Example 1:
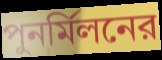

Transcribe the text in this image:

পুনর্মিলনের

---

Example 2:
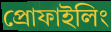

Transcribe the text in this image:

প্রোফাইলিং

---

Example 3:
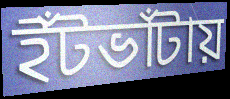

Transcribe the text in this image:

ইঁটভাঁটায়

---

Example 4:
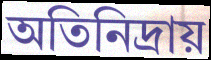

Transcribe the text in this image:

অতিনিদ্রায়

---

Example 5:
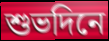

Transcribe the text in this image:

শুভদিনে